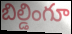
బిల్డింగూ